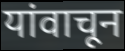
यांवाचून